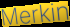
Merkin